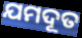
ଯମଦୂତ